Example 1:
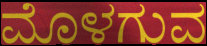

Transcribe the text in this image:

ಮೊಳಗುವ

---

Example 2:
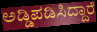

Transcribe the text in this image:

ಅಡ್ಡಿಪಡಿಸಿದ್ದಾರೆ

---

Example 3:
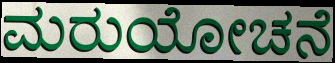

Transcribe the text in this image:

ಮರುಯೋಚನೆ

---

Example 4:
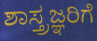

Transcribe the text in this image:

ಶಾಸ್ತ್ರಜ್ಞರಿಗೆ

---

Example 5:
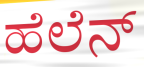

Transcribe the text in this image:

ಹೆಲೆನ್